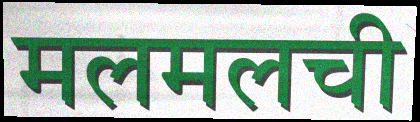
मलमलची